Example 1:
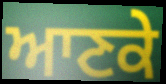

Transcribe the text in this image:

ਆਣਕੇ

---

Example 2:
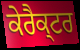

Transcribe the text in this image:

ਕੇਰੈਕ੍ਟਰ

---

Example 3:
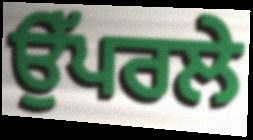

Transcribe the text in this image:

ਉੱਪਰਲੇ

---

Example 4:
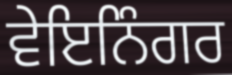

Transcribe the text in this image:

ਵੇਇਨਿੰਗਰ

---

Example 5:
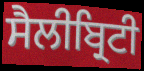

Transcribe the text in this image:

ਸੈਲੀਬ੍ਰਿਟੀ